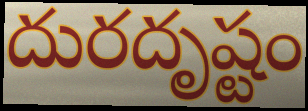
దురదృష్టం